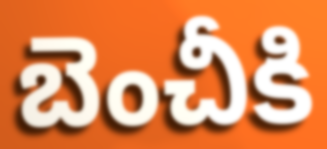
బెంచీకి